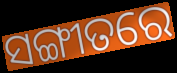
ସଙ୍ଗୀତରେ